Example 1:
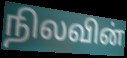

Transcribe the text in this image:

நிலவின்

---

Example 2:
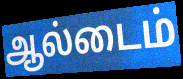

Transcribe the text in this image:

ஆல்டைம்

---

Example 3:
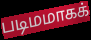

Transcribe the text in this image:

படிமமாகக்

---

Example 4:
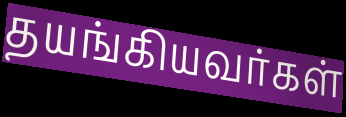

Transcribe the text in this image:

தயங்கியவர்கள்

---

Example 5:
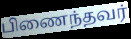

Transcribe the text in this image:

பிணைந்தவர்